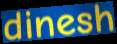
dinesh